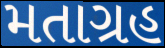
મતાગ્રહ